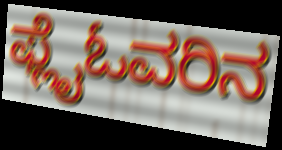
ಫ್ಲೈಓವರಿನ